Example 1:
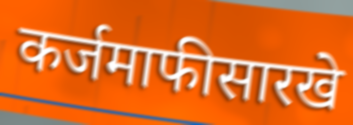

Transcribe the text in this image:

कर्जमाफीसारखे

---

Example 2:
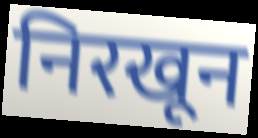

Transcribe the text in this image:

निरखून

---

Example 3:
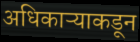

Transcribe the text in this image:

अधिकाऱ्याकडून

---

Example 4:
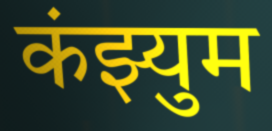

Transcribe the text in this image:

कंझ्युम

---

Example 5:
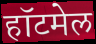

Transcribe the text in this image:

हॉटमेल